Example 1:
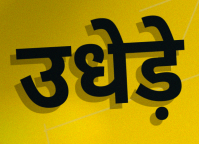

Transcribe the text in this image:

उधेड़े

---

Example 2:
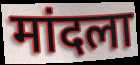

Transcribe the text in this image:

मांदला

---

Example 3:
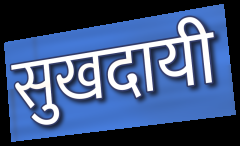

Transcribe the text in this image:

सुखदायी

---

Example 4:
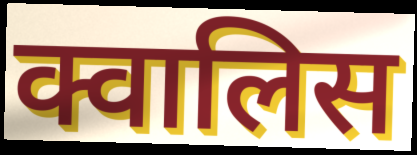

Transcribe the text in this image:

क्वालिस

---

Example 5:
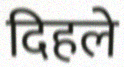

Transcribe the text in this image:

दिहले